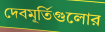
দেবমূর্তিগুলোর